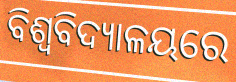
ବିଶ୍ବବିଦ୍ୟାଳୟରେ